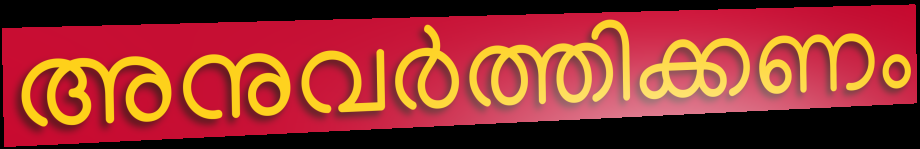
അനുവർത്തിക്കണം